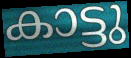
കാട്ടു